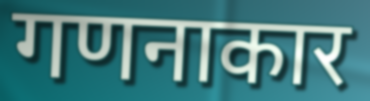
गणनाकार